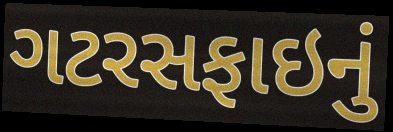
ગટરસફાઇનું